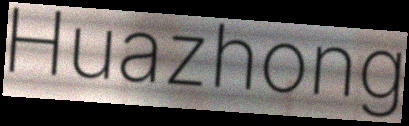
Huazhong